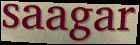
saagar